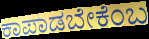
ಕಾಪಾಡಬೇಕೆಂಬ